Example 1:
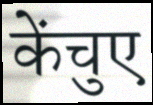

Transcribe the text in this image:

केंचुए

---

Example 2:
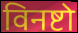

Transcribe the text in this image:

विनष्टो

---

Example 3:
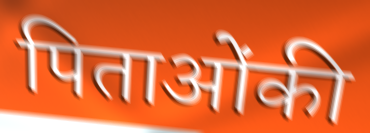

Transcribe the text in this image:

पिताओंकी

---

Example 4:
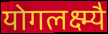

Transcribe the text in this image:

योगलक्ष्म्यै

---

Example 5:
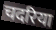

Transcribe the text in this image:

चदरिया